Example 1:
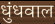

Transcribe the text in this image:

धुंधवाल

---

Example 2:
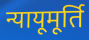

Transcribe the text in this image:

न्यायूमूर्ति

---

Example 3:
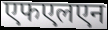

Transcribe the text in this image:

एफएलएन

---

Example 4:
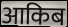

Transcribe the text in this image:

आकिब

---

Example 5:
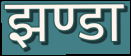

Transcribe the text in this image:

झण्डा